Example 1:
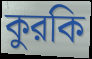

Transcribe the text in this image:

কুরকি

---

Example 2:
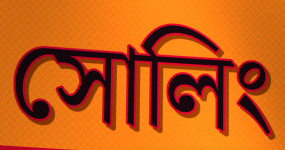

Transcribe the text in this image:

সোলিং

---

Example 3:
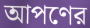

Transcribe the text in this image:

আপণের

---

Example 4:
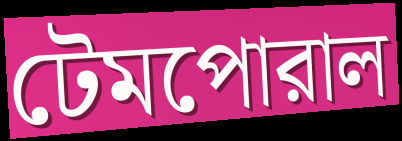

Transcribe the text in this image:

টেমপোরাল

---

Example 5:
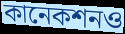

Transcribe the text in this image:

কানেকশনও